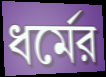
ধর্মের